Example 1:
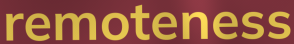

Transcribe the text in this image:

remoteness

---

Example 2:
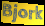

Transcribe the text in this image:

Bjork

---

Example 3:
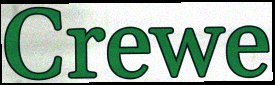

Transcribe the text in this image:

Crewe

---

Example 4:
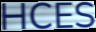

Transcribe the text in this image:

HCES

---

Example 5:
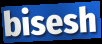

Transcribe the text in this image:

bisesh